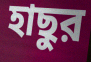
হাছুর